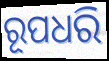
ରୂପଧରି